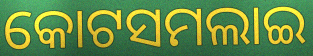
କୋଟସମଲାଇ